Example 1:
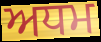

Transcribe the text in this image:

ਅਧਮ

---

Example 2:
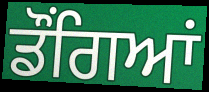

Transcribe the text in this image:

ਡੌਂਗਿਆਂ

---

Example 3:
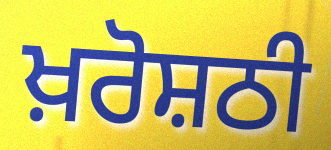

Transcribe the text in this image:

ਖ਼ਰੋਸ਼ਠੀ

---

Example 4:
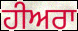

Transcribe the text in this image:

ਹੀਅਰਾ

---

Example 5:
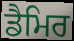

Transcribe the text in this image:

ਡੈਮਿਰ